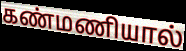
கண்மணியால்